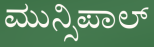
ಮುನ್ಸಿಪಾಲ್